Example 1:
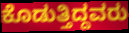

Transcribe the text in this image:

ಕೊಡುತ್ತಿದ್ದವರು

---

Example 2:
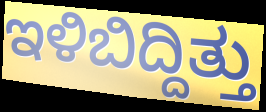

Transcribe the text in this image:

ಇಳಿಬಿದ್ದಿತ್ತು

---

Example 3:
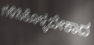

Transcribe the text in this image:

ಗಳಿಸಿಕೊಳ್ಳಬೇಕಾದ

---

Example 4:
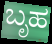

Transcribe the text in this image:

ಬೃಹ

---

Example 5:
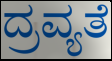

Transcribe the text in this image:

ದ್ರವ್ಯತೆ